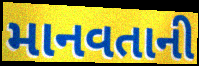
માનવતાની